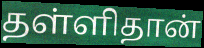
தள்ளிதான்